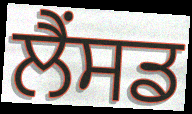
ਲੈਂਸਡ